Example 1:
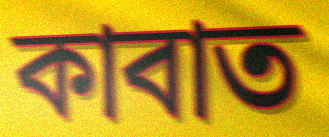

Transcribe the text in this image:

কাবাত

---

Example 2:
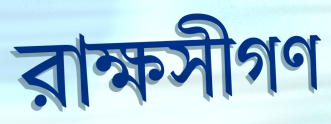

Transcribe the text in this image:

রাক্ষসীগণ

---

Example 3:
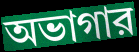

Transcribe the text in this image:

অভাগার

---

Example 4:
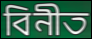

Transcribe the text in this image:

বিনীত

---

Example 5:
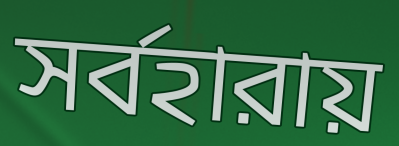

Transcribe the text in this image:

সর্বহারায়